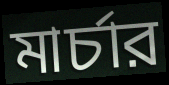
মার্চার